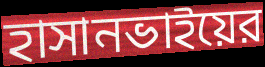
হাসানভাইয়ের